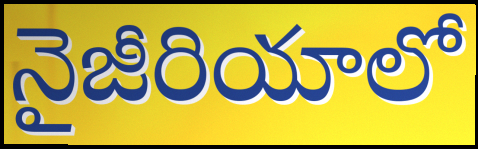
నైజీరియాలో